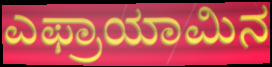
ಎಫ್ರಾಯಾಮಿನ